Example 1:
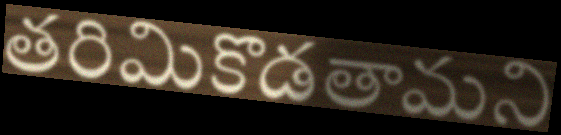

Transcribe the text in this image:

తరిమికొడతామని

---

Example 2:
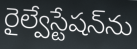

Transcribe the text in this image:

రైల్వేస్టేషన్‌ను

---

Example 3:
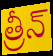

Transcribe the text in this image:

త్రీన్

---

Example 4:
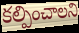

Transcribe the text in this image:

కల్పించాలని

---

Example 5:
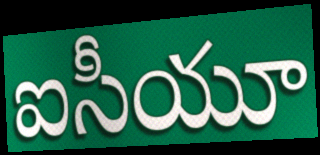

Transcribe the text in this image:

ఐసీయూ